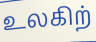
உலகிற்